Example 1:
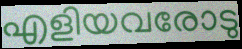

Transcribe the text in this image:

എളിയവരോടു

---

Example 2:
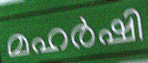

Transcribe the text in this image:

മഹർഷി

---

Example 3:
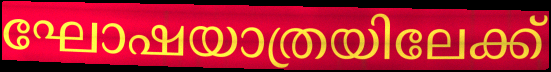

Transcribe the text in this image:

ഘോഷയാത്രയിലേക്ക്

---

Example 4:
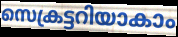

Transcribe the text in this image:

സെക്രട്ടറിയാകാം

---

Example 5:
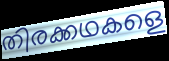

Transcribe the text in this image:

തിരക്കഥകളെ